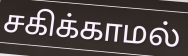
சகிக்காமல்